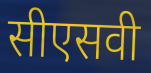
सीएसवी